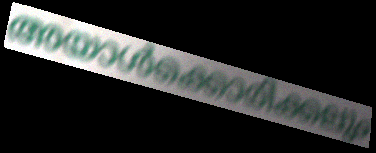
അയാൾക്കൊരിക്കലും